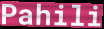
Pahili